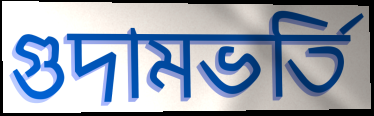
গুদামভর্তি